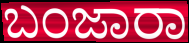
ಬಂಜಾರಾ